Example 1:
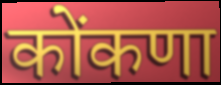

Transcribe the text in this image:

कोंकणा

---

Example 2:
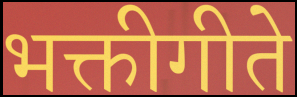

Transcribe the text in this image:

भक्तीगीते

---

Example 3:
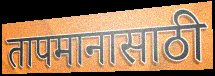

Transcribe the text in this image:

तापमानासाठी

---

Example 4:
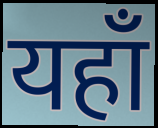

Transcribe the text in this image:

यहाँ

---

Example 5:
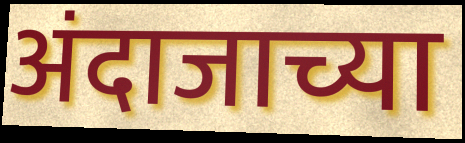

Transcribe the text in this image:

अंदाजाच्या